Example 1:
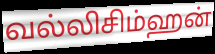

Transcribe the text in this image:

வல்லிசிம்ஹன்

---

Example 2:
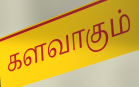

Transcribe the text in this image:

களவாகும்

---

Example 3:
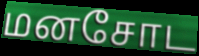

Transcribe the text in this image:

மனசோட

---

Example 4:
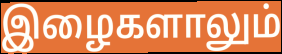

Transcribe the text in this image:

இழைகளாலும்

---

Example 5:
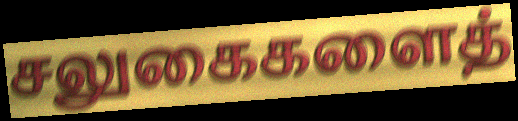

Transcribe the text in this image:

சலுகைகளைத்